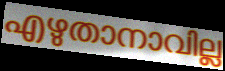
എഴുതാനാവില്ല